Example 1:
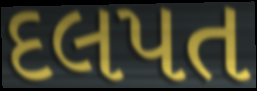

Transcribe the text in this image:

દલપત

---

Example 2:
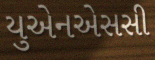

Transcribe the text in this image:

યુએનએસસી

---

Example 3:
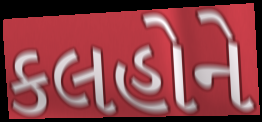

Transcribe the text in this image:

કલહોને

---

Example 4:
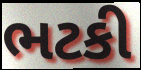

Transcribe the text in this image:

ભટકી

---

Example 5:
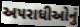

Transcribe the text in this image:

અપરાધીઓનું